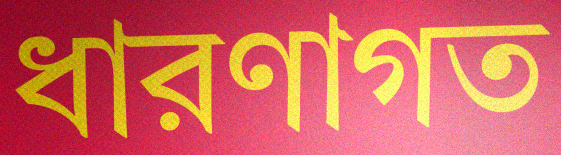
ধারণাগত